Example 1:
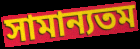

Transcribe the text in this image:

সামান্যতম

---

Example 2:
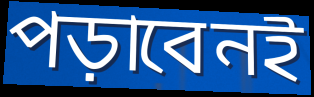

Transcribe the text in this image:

পড়াবেনই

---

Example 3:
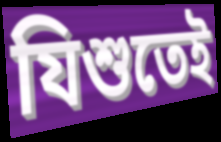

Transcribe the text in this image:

যিশুতেই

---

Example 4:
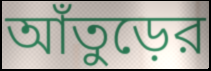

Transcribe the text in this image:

আঁতুড়ের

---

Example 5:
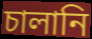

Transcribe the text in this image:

চালানি